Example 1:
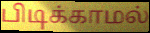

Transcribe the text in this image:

பிடிக்காமல்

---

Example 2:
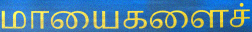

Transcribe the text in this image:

மாயைகளைச்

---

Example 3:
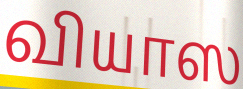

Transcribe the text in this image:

வியாஸ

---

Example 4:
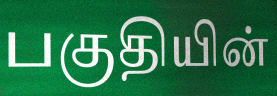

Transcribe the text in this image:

பகுதியின்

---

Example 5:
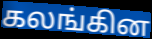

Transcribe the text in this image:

கலங்கின